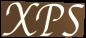
XPS